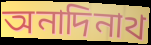
অনাদিনাথ